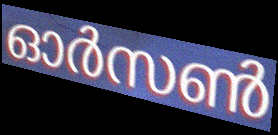
ഓർസൺ